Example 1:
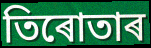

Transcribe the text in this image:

তিৰোতাৰ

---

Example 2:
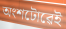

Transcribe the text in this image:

অংশটোৱেই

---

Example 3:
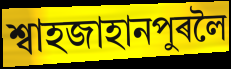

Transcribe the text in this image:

শ্বাহজাহানপুৰলৈ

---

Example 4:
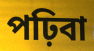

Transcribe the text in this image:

পঢ়িবা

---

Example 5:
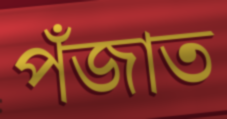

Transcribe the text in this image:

পঁজাত